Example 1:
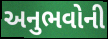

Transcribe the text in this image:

અનુભવોની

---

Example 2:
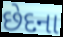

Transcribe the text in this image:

છેદના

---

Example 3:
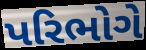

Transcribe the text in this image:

પરિભોગે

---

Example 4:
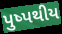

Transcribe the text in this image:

પુષ્પથીય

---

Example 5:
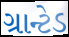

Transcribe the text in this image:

ગ્રાન્ટેડ